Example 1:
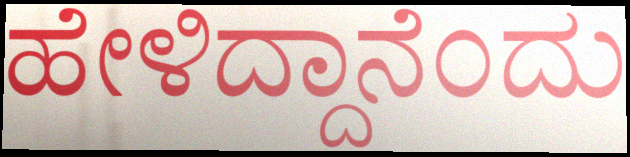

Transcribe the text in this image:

ಹೇಳಿದ್ದಾನೆಂದು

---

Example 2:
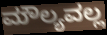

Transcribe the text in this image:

ಮೌಲ್ಯವಲ್ಲ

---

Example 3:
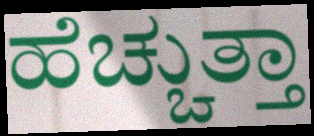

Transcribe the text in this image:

ಹೆಚ್ಚುತ್ತಾ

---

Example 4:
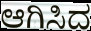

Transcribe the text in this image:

ಆಗಿಸಿದ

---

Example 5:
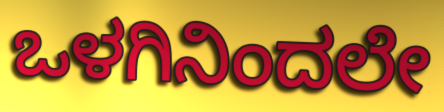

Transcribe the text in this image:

ಒಳಗಿನಿಂದಲೇ